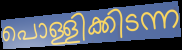
പൊള്ളിക്കിടന്ന